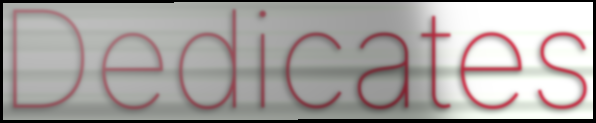
Dedicates